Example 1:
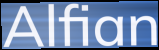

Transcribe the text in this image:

Alfian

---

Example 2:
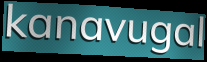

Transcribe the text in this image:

kanavugal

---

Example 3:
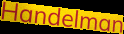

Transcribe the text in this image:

Handelman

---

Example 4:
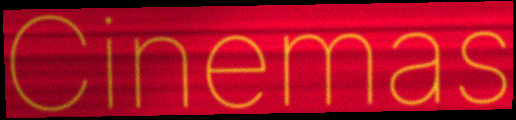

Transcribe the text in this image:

Cinemas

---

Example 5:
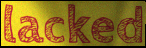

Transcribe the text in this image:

lacked